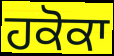
ਹਕੋਕਾ